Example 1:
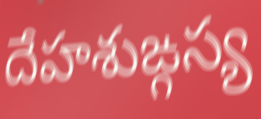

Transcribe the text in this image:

దేహశుఙ్గస్య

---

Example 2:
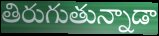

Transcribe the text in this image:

తిరుగుతున్నాడా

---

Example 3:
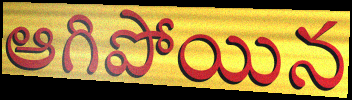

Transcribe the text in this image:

ఆగిపోయిన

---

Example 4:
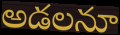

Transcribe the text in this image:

అడలనూ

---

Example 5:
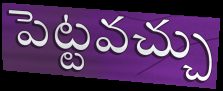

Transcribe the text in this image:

పెట్టవచ్చు